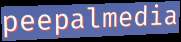
peepalmedia